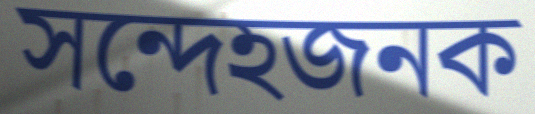
সন্দেহজনক